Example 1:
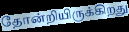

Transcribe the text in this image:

தோன்றியிருக்கிறது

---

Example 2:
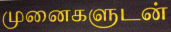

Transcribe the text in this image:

முனைகளுடன்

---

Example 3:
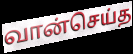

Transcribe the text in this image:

வான்செய்த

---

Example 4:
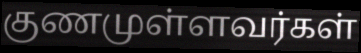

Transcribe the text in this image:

குணமுள்ளவர்கள்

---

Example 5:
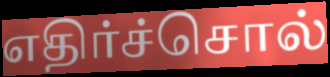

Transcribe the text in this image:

எதிர்ச்சொல்